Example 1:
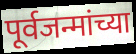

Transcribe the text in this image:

पूर्वजन्मांच्या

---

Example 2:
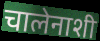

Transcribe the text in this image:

चालेनाशी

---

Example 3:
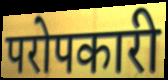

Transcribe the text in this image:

परोपकारी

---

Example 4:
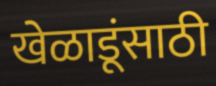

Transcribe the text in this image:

खेळाडूंसाठी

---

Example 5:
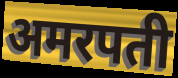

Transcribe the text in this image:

अमरपती